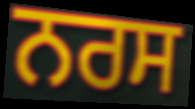
ਨਰਸ